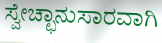
ಸ್ವೇಚ್ಛಾನುಸಾರವಾಗಿ